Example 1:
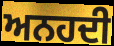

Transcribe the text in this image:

ਅਨਹਦੀ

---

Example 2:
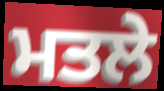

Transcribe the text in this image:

ਮਤਲੇ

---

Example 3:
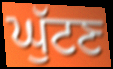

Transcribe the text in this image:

ਘੁੱਟਣ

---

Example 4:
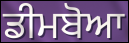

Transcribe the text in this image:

ਡੀਮਬੋਆ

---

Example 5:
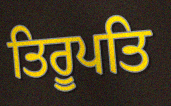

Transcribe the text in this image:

ਤਿਰੂਪਤਿ